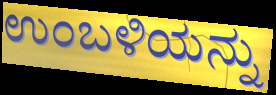
ಉಂಬಳಿಯನ್ನು